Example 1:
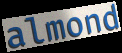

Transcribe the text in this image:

almond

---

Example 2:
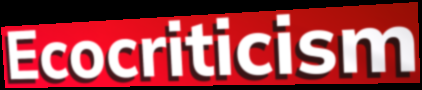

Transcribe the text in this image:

Ecocriticism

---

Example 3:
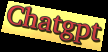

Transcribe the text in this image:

Chatgpt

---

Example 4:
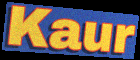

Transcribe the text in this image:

Kaur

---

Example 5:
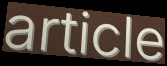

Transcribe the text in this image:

article